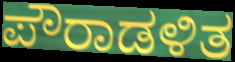
ಪೌರಾಡಳಿತ